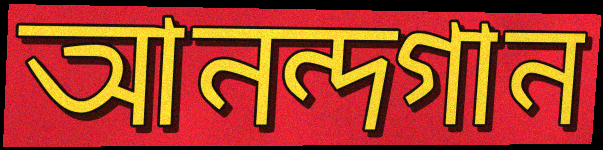
আনন্দগান